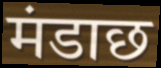
मंडाछ